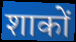
शाकों